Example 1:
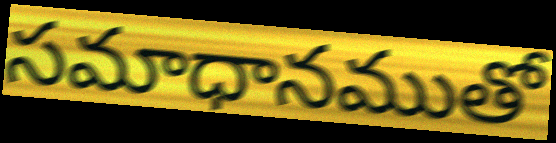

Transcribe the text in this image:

సమాధానముతో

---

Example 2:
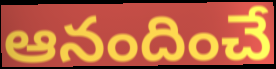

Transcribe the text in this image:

ఆనందించే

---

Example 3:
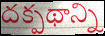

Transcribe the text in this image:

దక్పథాన్ని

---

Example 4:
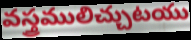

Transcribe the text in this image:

వస్త్రములిచ్చుటయు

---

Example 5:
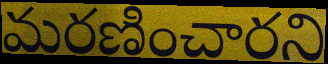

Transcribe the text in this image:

మరణించారని